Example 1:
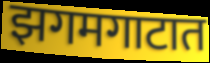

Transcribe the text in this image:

झगमगाटात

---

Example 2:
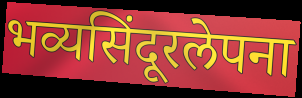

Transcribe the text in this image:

भव्यसिंदूरलेपना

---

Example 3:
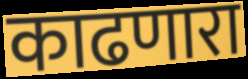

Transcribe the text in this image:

काढणारा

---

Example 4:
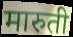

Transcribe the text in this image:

मारुती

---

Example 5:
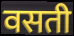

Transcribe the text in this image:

वसती